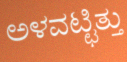
ಅಳವಟ್ಟಿತ್ತು